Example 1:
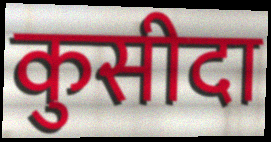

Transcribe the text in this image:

कुसीदा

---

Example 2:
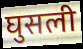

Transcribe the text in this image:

घुसली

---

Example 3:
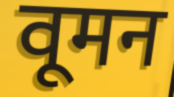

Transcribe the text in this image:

वूमन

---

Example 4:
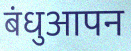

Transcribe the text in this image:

बंधुआपन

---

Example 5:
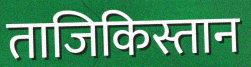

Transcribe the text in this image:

ताजिकिस्तान